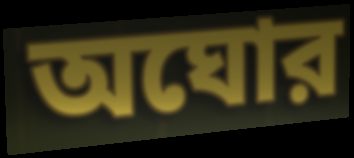
অঘোর